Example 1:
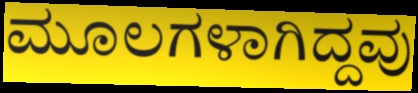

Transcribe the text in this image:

ಮೂಲಗಳಾಗಿದ್ದವು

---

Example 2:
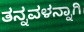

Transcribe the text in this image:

ತನ್ನವಳನ್ನಾಗಿ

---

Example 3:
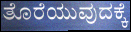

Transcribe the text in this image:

ತೊರೆಯುವುದಕ್ಕೆ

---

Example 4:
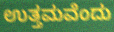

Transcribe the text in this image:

ಉತ್ತಮವೆಂದು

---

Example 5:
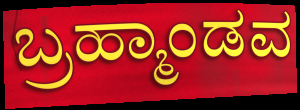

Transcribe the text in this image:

ಬ್ರಹ್ಮಾಂಡವ